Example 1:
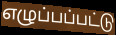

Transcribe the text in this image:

எழுப்பப்பட்டு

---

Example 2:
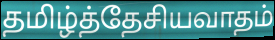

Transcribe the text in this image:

தமிழ்த்தேசியவாதம்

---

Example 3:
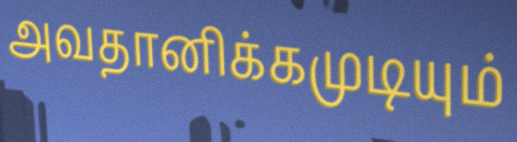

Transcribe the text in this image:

அவதானிக்கமுடியும்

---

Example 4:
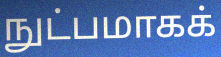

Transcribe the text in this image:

நுட்பமாகக்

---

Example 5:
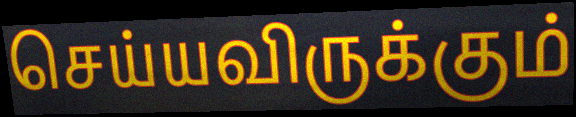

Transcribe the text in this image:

செய்யவிருக்கும்